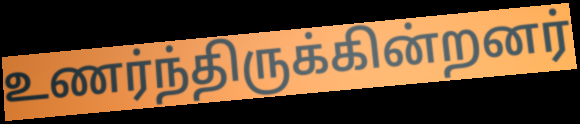
உணர்ந்திருக்கின்றனர்